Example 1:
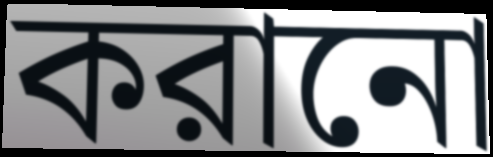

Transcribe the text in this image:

করানো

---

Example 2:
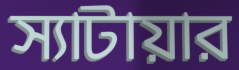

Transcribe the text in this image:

স্যাটায়ার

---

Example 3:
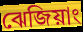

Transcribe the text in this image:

ঝেজিয়াং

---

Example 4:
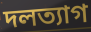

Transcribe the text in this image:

দলত্যাগ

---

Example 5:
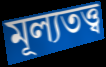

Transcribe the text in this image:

মূল্যতত্ত্ব